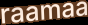
raamaa